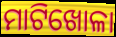
ମାଟିଖୋଳା